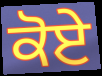
ਕੋਏ